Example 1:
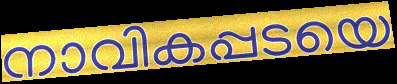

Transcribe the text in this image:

നാവികപ്പടയെ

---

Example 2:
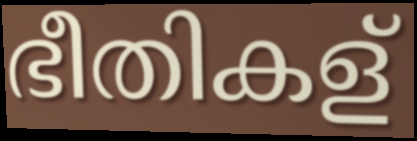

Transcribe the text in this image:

ഭീതികള്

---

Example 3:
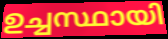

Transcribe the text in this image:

ഉച്ചസ്ഥായി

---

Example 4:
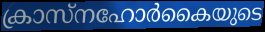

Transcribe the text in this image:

ക്രാസ്നഹോർകൈയുടെ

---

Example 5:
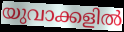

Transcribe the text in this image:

യുവാക്കളിൽ